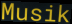
Musik